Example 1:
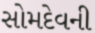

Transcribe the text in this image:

સોમદેવની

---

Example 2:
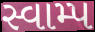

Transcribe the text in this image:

સ્વામ્પ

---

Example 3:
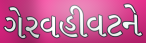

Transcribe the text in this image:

ગેરવહીવટને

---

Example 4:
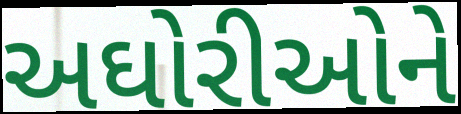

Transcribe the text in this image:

અઘોરીઓને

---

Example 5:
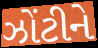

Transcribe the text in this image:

ઝોંટીને